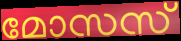
മോസസ്